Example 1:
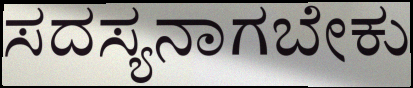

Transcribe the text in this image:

ಸದಸ್ಯನಾಗಬೇಕು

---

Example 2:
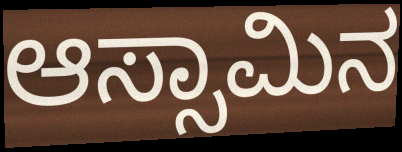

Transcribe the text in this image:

ಆಸ್ಸಾಮಿನ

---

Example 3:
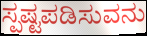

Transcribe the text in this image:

ಸ್ಪಷ್ಟಪಡಿಸುವನು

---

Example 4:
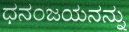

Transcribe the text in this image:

ಧನಂಜಯನನ್ನು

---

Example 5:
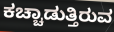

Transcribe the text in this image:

ಕಚ್ಚಾಡುತ್ತಿರುವ